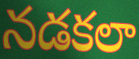
నడకలా